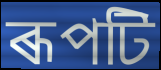
ৰূপটি